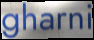
gharni